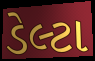
ડેલ્ટા